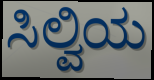
ಸಿಲ್ವಿಯ